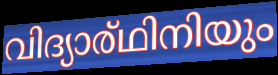
വിദ്യാര്ഥിനിയും